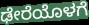
ಢೇರೆಯೊಳಗೆ